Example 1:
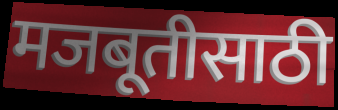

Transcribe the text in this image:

मजबूतीसाठी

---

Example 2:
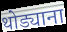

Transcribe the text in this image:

थोड्याना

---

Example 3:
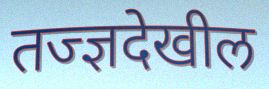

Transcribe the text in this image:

तज्ज्ञदेखील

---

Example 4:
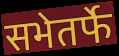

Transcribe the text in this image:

सभेतर्फे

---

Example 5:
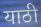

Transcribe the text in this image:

याठी